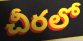
చీరలో